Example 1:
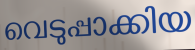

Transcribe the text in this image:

വെടുപ്പാക്കിയ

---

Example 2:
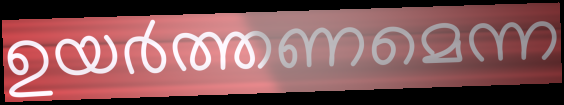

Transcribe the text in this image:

ഉയർത്തണമെന്ന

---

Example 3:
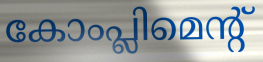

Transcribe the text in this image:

കോംപ്ലിമെന്റ്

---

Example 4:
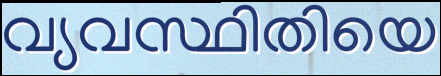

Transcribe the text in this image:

വ്യവസ്ഥിതിയെ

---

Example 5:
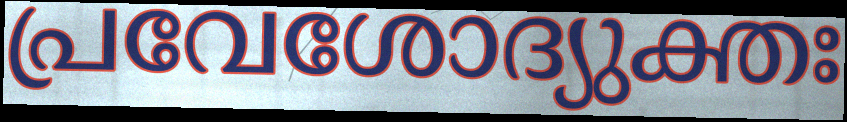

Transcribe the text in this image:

പ്രവേശോദ്യുക്തഃ